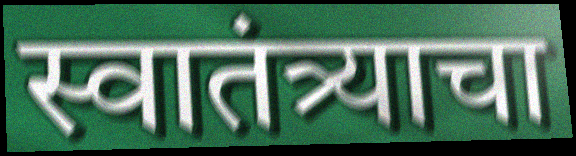
स्‍वातंत्र्याचा